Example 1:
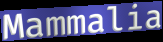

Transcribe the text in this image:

Mammalia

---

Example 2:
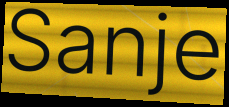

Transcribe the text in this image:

Sanje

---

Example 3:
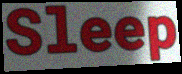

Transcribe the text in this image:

Sleep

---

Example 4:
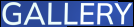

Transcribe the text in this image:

GALLERY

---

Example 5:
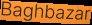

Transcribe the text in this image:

Baghbazar